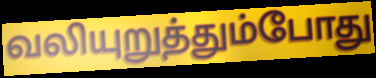
வலியுறுத்தும்போது